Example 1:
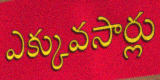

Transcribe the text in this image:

ఎక్కువసార్లు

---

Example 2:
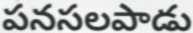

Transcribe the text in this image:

పనసలపాడు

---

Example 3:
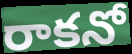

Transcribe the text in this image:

రాకనో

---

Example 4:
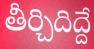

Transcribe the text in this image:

తీర్చిదిద్దే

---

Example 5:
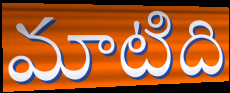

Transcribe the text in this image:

మాటిది